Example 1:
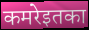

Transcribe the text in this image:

कमरेइतका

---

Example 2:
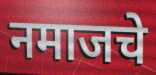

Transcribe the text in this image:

नमाजचे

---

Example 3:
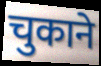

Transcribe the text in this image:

चुकाने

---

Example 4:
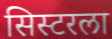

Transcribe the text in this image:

सिस्टरला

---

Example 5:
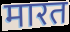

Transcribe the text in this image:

मारत